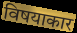
विषयाकार